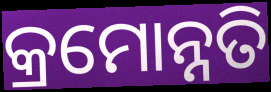
କ୍ରମୋନ୍ନତି